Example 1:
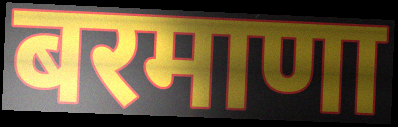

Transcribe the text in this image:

बरमाणा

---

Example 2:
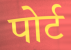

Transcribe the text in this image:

पोर्ट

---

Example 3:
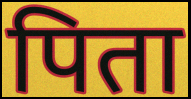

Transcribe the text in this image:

पिता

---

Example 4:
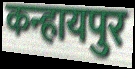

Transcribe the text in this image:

कन्हायपुर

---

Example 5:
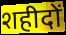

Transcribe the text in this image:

शहीदों